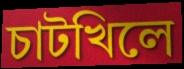
চাটখিলে